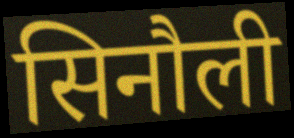
सिनौली